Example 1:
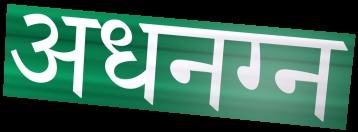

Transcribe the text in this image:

अधनग्न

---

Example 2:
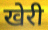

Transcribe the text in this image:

खेरी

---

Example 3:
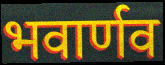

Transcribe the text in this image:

भवार्णव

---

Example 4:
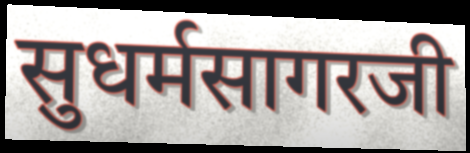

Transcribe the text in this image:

सुधर्मसागरजी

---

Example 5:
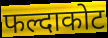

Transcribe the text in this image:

फल्दाकोट